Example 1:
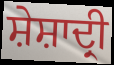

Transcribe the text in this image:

ਸ਼ੇਸ਼ਾਦ੍ਰੀ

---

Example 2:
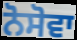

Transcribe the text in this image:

ਨੋਸੋਵਾ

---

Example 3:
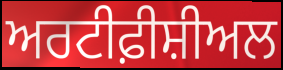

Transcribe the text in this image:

ਅਰਟੀਫ਼ੀਸ਼ੀਅਲ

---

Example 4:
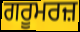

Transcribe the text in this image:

ਗਰੂਮਰਜ਼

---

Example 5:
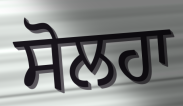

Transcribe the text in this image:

ਸੋਲਹਾ